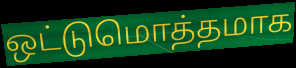
ஒட்டுமொத்தமாக